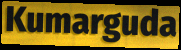
Kumarguda